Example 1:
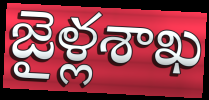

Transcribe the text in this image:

జైళ్లశాఖ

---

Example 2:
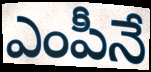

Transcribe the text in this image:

ఎంపీనే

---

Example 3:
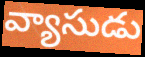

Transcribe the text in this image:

వ్యాసుడు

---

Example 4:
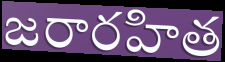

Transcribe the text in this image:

జరారహిత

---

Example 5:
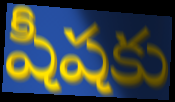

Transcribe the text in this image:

షీషకు